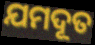
ଯମଦୂତ